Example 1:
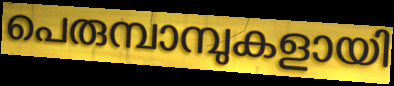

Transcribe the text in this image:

പെരുമ്പാമ്പുകളായി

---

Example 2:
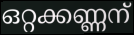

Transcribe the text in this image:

ഒറ്റക്കണ്ണന്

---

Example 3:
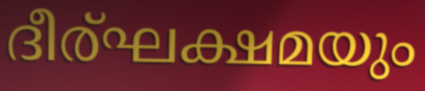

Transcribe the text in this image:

ദീര്ഘക്ഷമയും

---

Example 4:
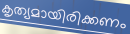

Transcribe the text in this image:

കൃത്യമായിരിക്കണം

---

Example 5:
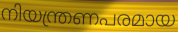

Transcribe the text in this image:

നിയന്ത്രണപരമായ